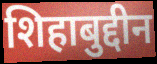
शिहाबुद्दीन